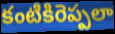
కంటికిరెప్పలా